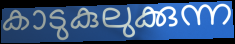
കാടുകുലുക്കുന്ന